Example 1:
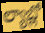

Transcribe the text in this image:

ల్యాబ్లో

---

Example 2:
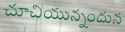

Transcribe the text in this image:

చూచియున్నందున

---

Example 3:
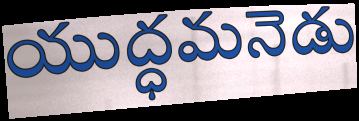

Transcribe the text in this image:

యుద్ధమనెడు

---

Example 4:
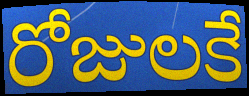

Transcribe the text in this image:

రోజులకే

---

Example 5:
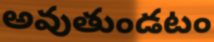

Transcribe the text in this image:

అవుతుండటం